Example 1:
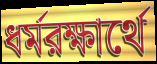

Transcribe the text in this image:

ধর্মরক্ষার্থে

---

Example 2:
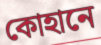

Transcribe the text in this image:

কোহানে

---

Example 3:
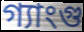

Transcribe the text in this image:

গ্যাংগু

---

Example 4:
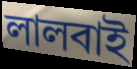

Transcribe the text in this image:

লালবাই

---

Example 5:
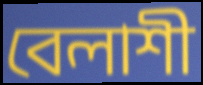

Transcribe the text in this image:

বেলাশী